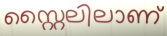
സ്റ്റൈലിലാണ്